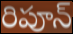
రిపూన్